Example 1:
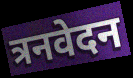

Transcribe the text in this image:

त्रनवेदन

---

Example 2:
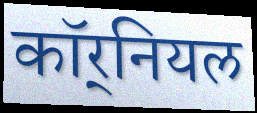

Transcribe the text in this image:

कॉर्नियल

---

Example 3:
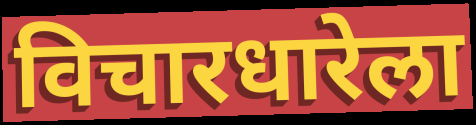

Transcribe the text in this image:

विचारधारेला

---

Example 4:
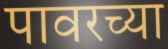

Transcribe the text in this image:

पावरच्या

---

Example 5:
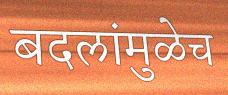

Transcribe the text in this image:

बदलांमुळेच